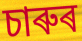
চাৰুৰ